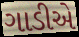
ગાડીએ